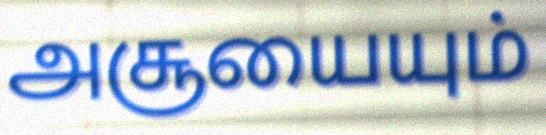
அசூயையும்